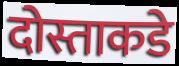
दोस्ताकडे